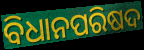
ବିଧାନପରିଷଦ